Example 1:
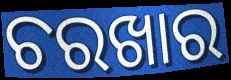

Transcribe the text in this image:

ଚରଖାର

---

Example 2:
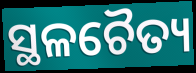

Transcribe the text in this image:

ସ୍ଥଳଚୈତ୍ୟ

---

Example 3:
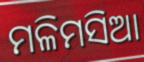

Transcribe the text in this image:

ମଳିମସିଆ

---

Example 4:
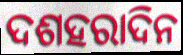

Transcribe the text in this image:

ଦଶହରାଦିନ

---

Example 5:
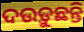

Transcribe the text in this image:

ଦଉଡ଼ୁଛନ୍ତି